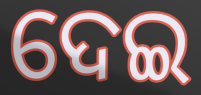
ଦେଇ